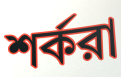
শর্করা